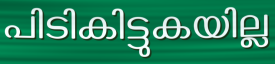
പിടികിട്ടുകയില്ല